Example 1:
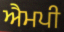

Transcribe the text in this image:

ਐਮਪੀ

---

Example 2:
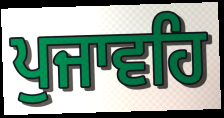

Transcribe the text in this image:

ਪੁਜਾਵਹਿ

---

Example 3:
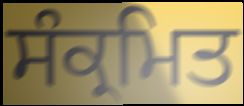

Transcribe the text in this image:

ਸੰਕ੍ਰਮਿਤ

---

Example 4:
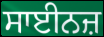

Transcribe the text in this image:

ਸਾਈਨਜ਼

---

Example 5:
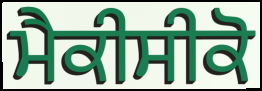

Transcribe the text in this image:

ਮੈਕੀਸੀਕੋ